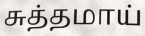
சுத்தமாய்